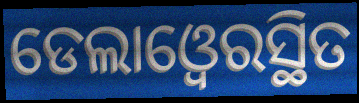
ଡେଲାଓ୍ବେରସ୍ଥିତ